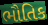
ભૌતિક